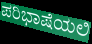
ಪರಿಭಾಷೆಯಲಿ